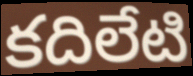
కదిలేటి